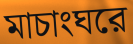
মাচাংঘরে